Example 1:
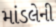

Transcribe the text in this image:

માંડલેની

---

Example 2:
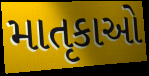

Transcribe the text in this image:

માતૃકાઓ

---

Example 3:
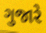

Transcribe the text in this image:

ગુજારે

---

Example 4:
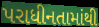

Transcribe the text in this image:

પરાધીનતામાંથી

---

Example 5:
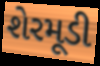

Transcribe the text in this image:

શેરમૂડી